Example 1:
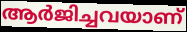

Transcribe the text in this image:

ആർജിച്ചവയാണ്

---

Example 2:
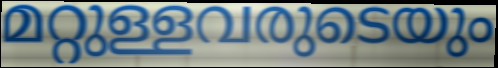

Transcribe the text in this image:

മറ്റുള്ളവരുടെയും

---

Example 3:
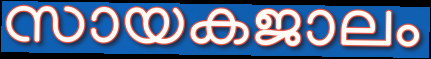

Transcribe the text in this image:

സായകജാലം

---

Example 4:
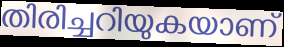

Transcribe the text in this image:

തിരിച്ചറിയുകയാണ്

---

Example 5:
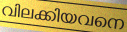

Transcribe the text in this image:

വിലക്കിയവനെ